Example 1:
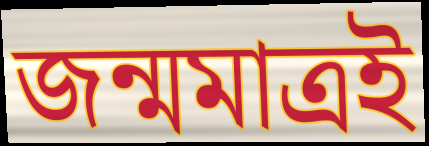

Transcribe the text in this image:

জন্মমাত্রই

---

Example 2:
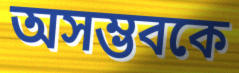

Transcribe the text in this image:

অসম্ভবকে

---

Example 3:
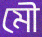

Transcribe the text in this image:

মৌ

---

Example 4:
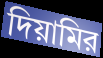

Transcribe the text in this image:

দিয়ামির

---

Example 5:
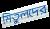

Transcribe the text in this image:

মিতুলদের